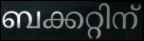
ബക്കറ്റിന്